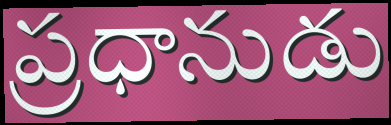
ప్రధానుడు